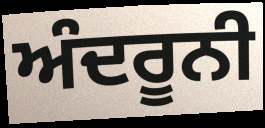
ਅੰਦਰੂਨੀ